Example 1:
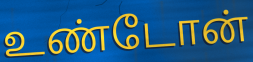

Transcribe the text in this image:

உண்டோன்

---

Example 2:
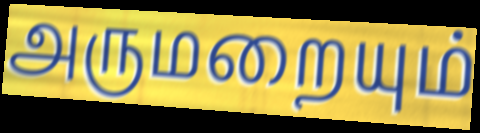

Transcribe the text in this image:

அருமறையும்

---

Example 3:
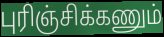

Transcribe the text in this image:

புரிஞ்சிக்கணும்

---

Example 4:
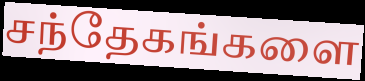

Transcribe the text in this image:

சந்தேகங்களை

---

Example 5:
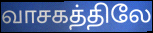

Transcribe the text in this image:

வாசகத்திலே